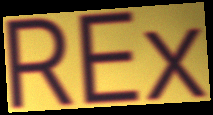
REx